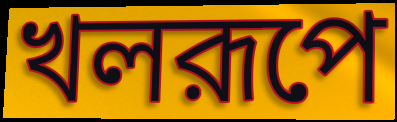
খলরূপে